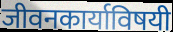
जीवनकार्याविषयी